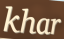
khar